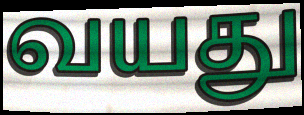
வயது